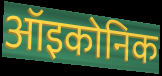
ऑइकोनिक